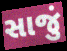
સાજું